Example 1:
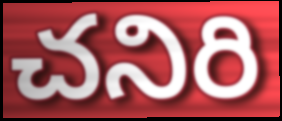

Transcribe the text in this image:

చనిరి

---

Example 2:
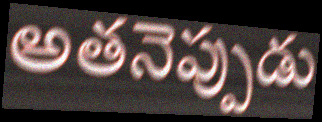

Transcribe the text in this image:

అతనెప్పుడు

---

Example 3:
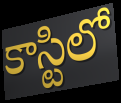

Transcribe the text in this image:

కాస్టిలో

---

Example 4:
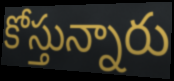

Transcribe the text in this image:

కోస్తున్నారు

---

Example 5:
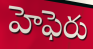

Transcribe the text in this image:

హెఫెరు